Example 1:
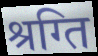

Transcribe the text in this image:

श्रग्ति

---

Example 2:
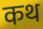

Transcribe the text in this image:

कथ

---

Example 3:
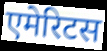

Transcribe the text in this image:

एमेरिटस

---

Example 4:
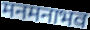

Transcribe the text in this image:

मनमनाभव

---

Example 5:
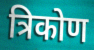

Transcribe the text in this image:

त्रिकोण